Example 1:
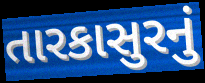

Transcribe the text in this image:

તારકાસુરનું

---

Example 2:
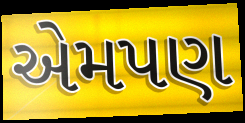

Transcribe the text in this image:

એમપણ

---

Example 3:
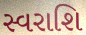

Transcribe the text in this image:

સ્વરાશિ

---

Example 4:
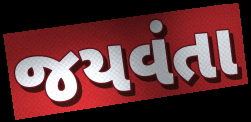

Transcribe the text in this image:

જયવંતા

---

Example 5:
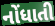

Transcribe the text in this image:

નોંધાતી